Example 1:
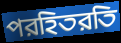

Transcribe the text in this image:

পরহিতরতি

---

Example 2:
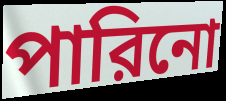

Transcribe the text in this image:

পারিনো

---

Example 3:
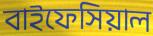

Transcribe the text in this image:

বাইফেসিয়াল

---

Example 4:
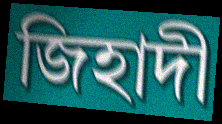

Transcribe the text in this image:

জিহাদী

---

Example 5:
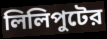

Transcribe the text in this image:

লিলিপুটের